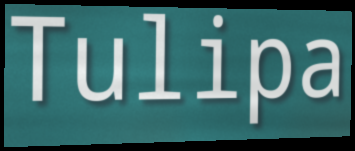
Tulipa